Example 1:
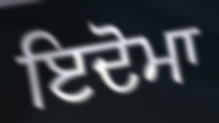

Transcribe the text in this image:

ਇਦੋਮਾ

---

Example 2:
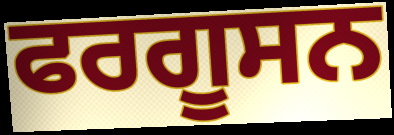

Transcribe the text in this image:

ਫਰਗੂਸਨ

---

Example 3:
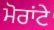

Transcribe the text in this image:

ਮੋਰਾਂਟੇ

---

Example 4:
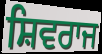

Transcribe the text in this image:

ਸ਼ਿਵਰਾਜ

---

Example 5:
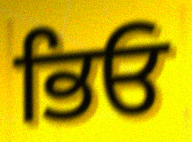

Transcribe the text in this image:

ਭਿਓ